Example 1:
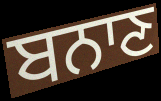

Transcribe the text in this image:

ਬਨਾਣ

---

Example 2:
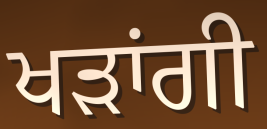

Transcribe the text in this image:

ਖੜਾਂਗੀ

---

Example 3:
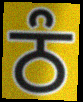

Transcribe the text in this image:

ਠੰ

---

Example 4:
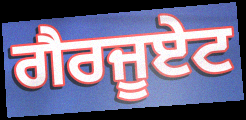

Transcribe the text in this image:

ਗੈਰਜੂਏਟ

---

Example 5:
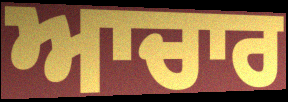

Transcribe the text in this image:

ਆਚਾਰ